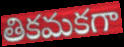
తికమకగా